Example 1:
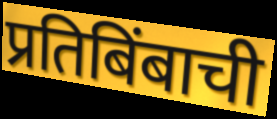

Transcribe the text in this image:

प्रतिबिंबाची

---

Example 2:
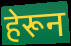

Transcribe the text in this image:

हेरून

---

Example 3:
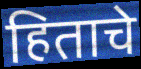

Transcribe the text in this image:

हिताचे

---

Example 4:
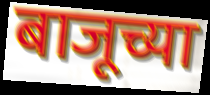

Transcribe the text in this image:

बाजूच्या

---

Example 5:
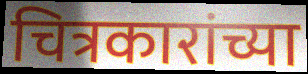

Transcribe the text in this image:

चित्रकारांच्या